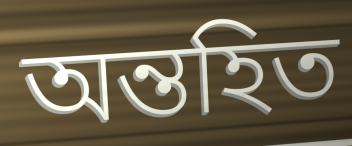
অন্তহিত